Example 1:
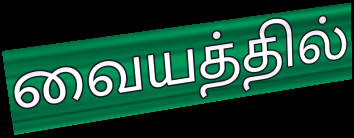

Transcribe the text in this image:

வையத்தில்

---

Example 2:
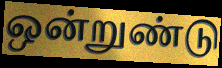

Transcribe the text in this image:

ஒன்றுண்டு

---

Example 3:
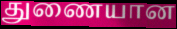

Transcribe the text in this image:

துணையான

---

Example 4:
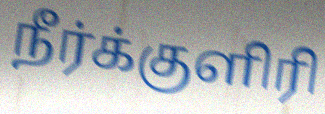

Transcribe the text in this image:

நீர்க்குளிரி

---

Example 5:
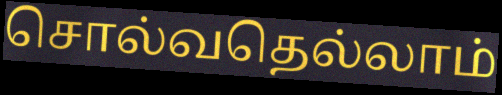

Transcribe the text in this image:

சொல்வதெல்லாம்